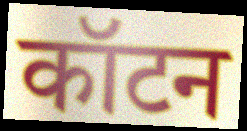
कॉटन